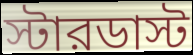
স্টারডাস্ট